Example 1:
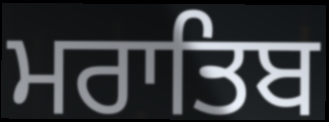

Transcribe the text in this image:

ਮਰਾਤਿਬ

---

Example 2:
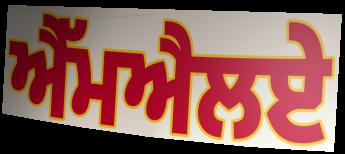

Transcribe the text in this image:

ਐੱਮਐਲਏ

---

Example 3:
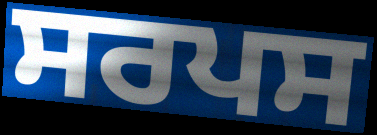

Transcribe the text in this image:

ਸਰਪਸ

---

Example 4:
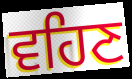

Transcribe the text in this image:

ਵਹਿਣ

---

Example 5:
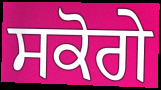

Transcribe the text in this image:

ਸਕੋਗੇ